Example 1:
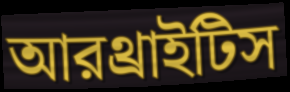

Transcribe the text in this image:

আরথ্রাইটিস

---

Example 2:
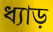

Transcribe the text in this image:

ধ্যাড়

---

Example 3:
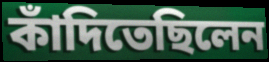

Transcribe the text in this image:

কাঁদিতেছিলেন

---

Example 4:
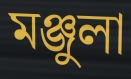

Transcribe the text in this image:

মঞ্জুলা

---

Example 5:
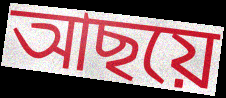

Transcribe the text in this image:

আছয়ে